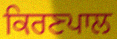
ਕਿਰਣਪਾਲ